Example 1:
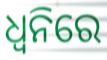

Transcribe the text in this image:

ଧ୍ୱନିରେ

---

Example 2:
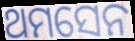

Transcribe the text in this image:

ଥମସେନ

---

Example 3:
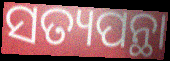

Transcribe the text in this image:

ସତ୍ୟପନ୍ଥା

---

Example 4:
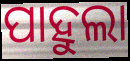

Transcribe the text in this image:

ପାହୁଲା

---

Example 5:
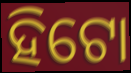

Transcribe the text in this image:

ହିଟୋ